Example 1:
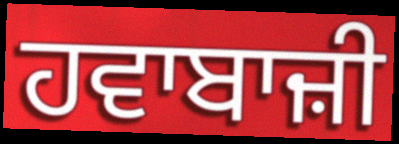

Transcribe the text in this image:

ਹਵਾਬਾਜ਼ੀ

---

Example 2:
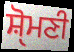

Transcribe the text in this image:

ਸ਼ੑੋਮਣੀ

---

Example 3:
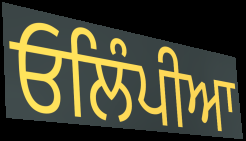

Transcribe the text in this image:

ਓਲਿੰਪੀਆ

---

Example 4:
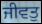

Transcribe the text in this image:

ਜੀਵਤੁ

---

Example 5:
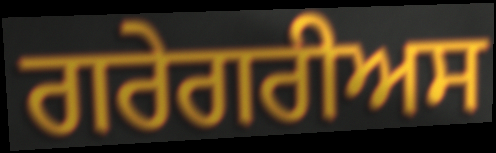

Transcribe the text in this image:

ਗਰੇਗਰੀਅਸ